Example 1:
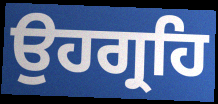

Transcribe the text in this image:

ਉਹਗ੍ਰਹਿ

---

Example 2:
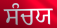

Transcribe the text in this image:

ਸੰਚਯ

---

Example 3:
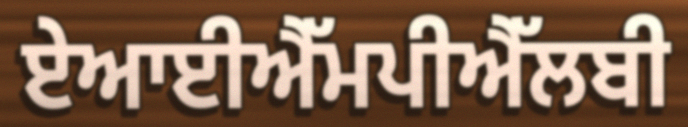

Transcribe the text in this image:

ਏਆਈਐੱਮਪੀਐੱਲਬੀ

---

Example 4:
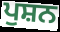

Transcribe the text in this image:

ਪੁਸ਼ਨ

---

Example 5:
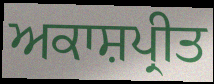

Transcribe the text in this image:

ਅਕਾਸ਼ਪ੍ਰੀਤ